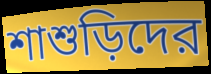
শাশুড়িদের